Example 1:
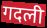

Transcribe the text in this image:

गदली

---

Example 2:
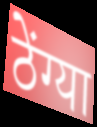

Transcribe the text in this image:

ठेंग्या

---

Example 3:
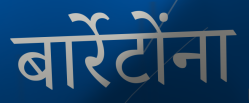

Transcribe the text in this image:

बार्रेटोंना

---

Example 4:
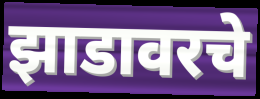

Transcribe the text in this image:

झाडावरचे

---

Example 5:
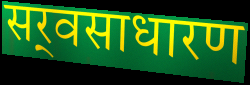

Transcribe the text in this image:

सर्वसाधारण